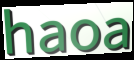
haoa